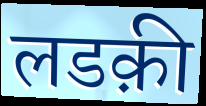
लडक़ी